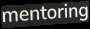
mentoring